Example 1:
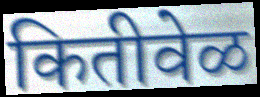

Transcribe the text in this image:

कितीवेळ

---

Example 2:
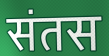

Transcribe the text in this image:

संतस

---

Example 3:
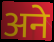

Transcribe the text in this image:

अने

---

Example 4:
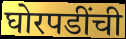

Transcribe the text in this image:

घोरपडींची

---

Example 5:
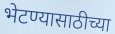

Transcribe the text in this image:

भेटण्यासाठीच्या